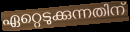
ഏറ്റെടുക്കുന്നതിന്